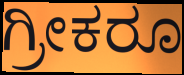
ಗ್ರೀಕರೂ